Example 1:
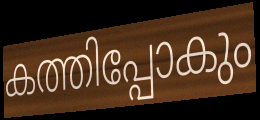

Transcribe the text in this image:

കത്തിപ്പോകും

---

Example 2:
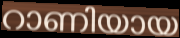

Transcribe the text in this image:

റാണിയായ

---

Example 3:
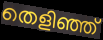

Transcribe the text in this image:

തെളിഞ്ഞ്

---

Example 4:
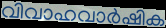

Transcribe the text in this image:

വിവാഹവാർഷിക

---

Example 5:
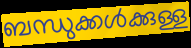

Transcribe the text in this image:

ബന്ധുക്കൾക്കുള്ള